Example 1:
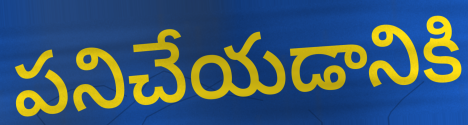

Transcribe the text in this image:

పనిచేయడానికి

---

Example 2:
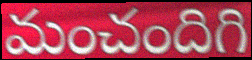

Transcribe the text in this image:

మంచందిగి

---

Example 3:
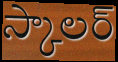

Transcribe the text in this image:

స్కాలర్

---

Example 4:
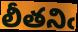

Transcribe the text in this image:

లీతనిఁ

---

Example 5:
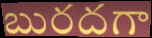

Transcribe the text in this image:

బురదగా